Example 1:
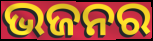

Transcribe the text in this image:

ଭଜନର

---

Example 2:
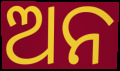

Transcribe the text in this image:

ଅନ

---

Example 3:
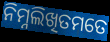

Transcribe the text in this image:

ନିମ୍ନଲିଖିତମତେ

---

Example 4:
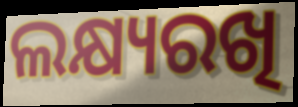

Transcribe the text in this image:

ଲକ୍ଷ୍ୟରଖି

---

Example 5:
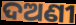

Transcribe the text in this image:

ଦଅଣୀ